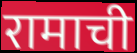
रामाची